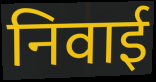
निवाई